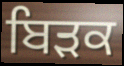
ਬਿੜਕ